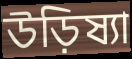
উড়িষ্যা